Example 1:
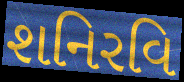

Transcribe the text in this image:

શનિરવિ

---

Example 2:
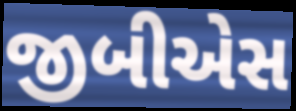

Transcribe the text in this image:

જીબીએસ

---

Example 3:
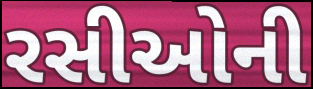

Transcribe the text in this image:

રસીઓની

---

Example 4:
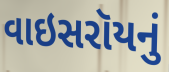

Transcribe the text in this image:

વાઇસરૉયનું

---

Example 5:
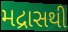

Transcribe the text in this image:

મદ્રાસથી